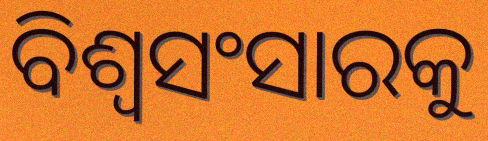
ବିଶ୍ୱସଂସାରକୁ